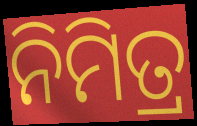
ନିମିତ୍ର